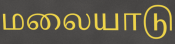
மலையாடு